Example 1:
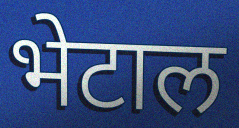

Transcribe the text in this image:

भेटाल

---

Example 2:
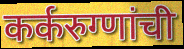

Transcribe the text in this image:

कर्करुग्णांची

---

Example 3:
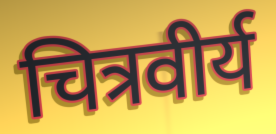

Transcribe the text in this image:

चित्रवीर्य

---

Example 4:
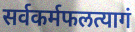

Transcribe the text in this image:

सर्वकर्मफलत्यागं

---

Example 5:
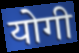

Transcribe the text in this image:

योगी